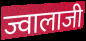
ज्वालाजी